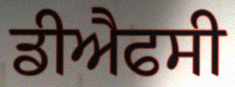
ਡੀਐਫਸੀ